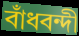
বাঁধবন্দী